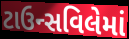
ટાઉન્સવિલેમાં